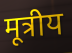
मूत्रीय